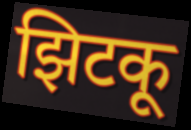
झिटकू